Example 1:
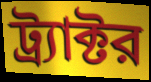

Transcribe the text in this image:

ট্র্যাক্টর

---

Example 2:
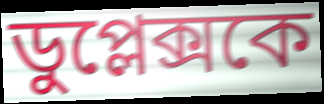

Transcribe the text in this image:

ডুপ্লেক্সকে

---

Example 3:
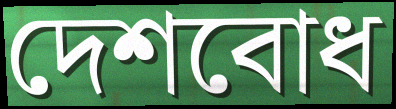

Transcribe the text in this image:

দেশবোধ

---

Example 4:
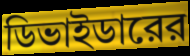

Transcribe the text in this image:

ডিভাইডারের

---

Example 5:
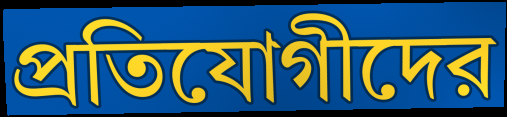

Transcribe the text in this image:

প্রতিযোগীদের